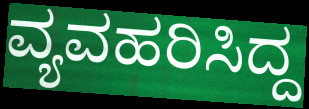
ವ್ಯವಹರಿಸಿದ್ದ